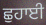
ਛੁਹਾਈ